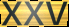
xxv